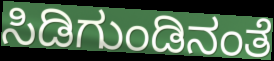
ಸಿಡಿಗುಂಡಿನಂತೆ